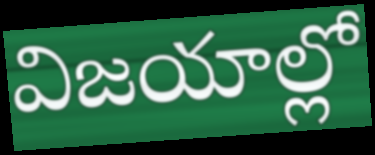
విజయాల్లో